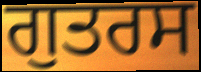
ਗੁਤਰਸ